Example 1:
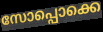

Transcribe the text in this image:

സോപ്പൊക്കെ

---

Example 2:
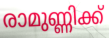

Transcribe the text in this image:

രാമുണ്ണിക്ക്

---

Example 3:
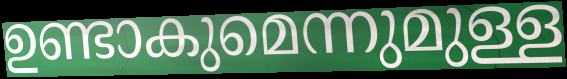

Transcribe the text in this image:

ഉണ്ടാകുമെന്നുമുള്ള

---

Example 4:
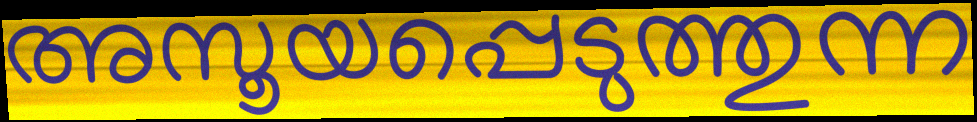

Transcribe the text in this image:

അസൂയപ്പെടുത്തുന്ന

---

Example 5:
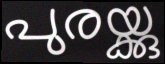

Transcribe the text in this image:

പുരയ്ക്കു